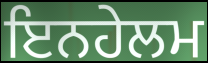
ਇਨਹੇਲਮ